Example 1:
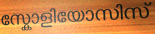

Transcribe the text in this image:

സ്കോളിയോസിസ്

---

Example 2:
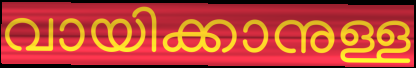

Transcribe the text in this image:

വായിക്കാനുള്ള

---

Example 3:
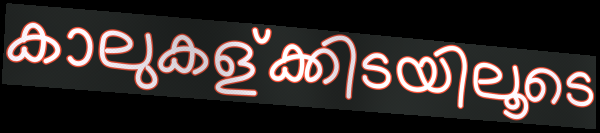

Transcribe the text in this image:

കാലുകള്ക്കിടയിലൂടെ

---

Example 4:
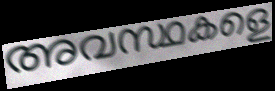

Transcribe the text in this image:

അവസ്ഥകളെ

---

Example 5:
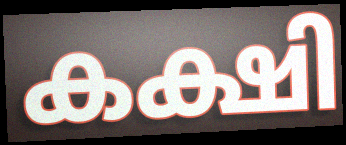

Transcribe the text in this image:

കക്ഷി